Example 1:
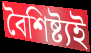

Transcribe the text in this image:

বৈশিষ্ট্যই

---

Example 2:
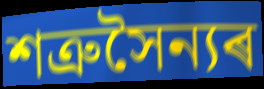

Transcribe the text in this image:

শত্ৰুসৈন্যৰ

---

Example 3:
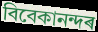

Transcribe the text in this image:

বিবেকানন্দৰ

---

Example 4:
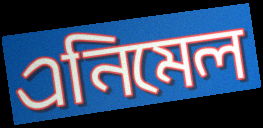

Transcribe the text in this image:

এনিমেল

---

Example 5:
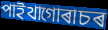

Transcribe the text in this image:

পাইথাগোৰাচৰ